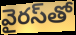
వైరస్‌తో